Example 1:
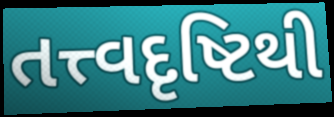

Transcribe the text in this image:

તત્ત્વદૃષ્ટિથી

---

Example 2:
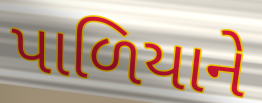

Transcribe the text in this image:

પાળિયાને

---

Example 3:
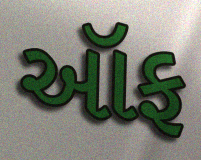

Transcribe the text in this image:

ઑફ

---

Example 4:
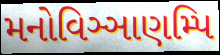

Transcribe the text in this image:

મનોવિઞ્ઞાણમ્પિ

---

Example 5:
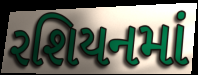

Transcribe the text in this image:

રશિયનમાં